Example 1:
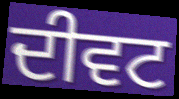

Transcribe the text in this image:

ਦੀਵਟ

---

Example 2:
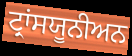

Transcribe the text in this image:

ਟ੍ਰਾਂਸਯੂਨੀਅਨ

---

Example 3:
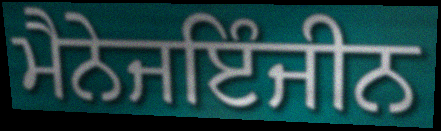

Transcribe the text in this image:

ਮੈਨੇਜਇੰਜੀਨ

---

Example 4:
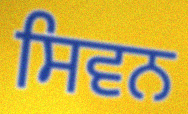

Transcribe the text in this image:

ਸਿਵਨ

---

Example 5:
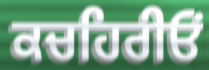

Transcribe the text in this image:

ਕਚਹਿਰੀਓਂ